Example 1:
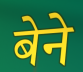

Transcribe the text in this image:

बेने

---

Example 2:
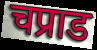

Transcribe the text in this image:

चप्राड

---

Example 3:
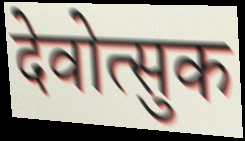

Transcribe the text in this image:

देवोत्सुक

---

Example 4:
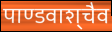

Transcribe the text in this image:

पाण्डवाश्चैव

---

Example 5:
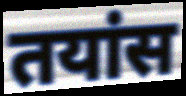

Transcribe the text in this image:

तयांस